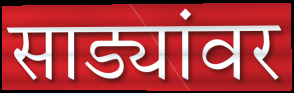
साड्यांवर